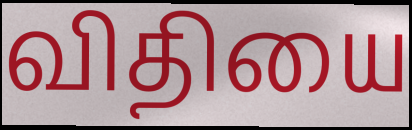
விதியை